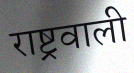
राष्ट्रवाली